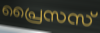
പ്രൈസസ്